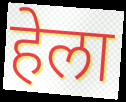
हेला